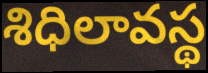
శిధిలావస్థ